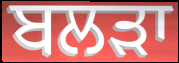
ਬਲੜਾ